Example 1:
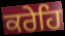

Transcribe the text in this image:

ਕਰੇਹਿ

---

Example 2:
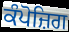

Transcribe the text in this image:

ਕੰਪੋਜ਼ਿਗ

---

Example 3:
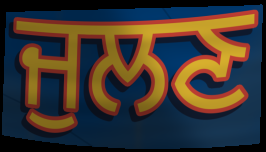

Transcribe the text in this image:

ਜੁਲਣ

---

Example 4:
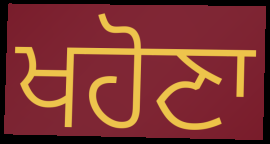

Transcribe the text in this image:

ਖਹੋਣਾ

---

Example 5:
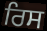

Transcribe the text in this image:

ਰਿਸ